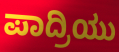
ಪಾದ್ರಿಯು